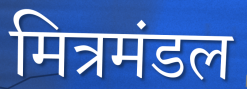
मित्रमंडल